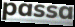
passa